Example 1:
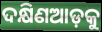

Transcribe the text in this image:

ଦକ୍ଷିଣଆଡ଼କୁ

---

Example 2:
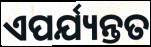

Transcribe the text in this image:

ଏପର୍ଯ୍ୟନ୍ତତ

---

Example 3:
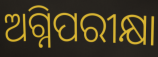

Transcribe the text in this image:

ଅଗ୍ନିପରୀକ୍ଷା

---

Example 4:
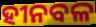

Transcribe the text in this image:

ହୀନବଳ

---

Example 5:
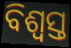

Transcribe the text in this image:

ବିଶ୍ବସ୍ତ